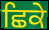
ਛਿਕੇ